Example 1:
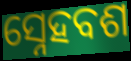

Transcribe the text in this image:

ସ୍ନେହବଶ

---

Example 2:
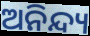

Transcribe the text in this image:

ଅନିନ୍ଦ୍ୟ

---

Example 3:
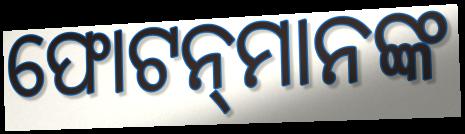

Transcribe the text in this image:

ଫୋଟନ୍‍ମାନଙ୍କ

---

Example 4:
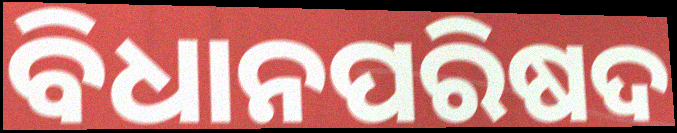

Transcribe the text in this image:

ବିଧାନପରିଷଦ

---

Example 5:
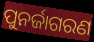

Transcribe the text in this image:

ପୁନର୍ଜାଗରଣ